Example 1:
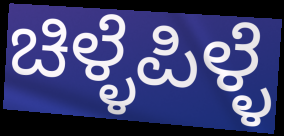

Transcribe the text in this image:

ಚಿಳ್ಳೆಪಿಳ್ಳೆ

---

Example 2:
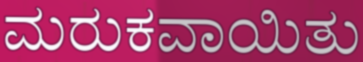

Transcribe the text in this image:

ಮರುಕವಾಯಿತು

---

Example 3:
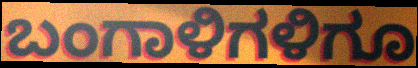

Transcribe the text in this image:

ಬಂಗಾಳಿಗಳಿಗೂ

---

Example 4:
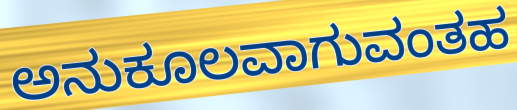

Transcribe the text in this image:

ಅನುಕೂಲವಾಗುವಂತಹ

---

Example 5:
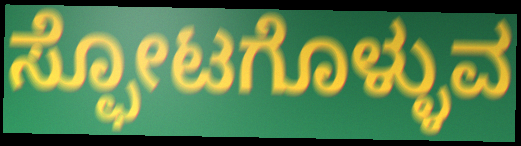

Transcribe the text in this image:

ಸ್ಫೋಟಗೊಳ್ಳುವ